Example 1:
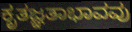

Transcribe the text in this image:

ಕೃತಜ್ಞತಾಭಾವವು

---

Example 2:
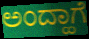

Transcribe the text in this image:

ಅಂದ್ಹಾಗೆ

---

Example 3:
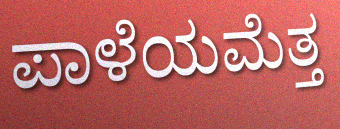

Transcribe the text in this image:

ಪಾಳೆಯಮೆತ್ತ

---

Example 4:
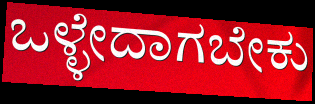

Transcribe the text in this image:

ಒಳ್ಳೇದಾಗಬೇಕು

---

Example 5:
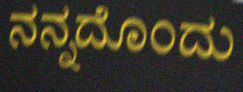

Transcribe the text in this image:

ನನ್ನದೊಂದು